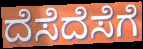
ದೆಸೆದೆಸೆಗೆ